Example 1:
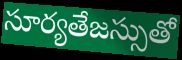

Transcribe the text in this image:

సూర్యతేజస్సుతో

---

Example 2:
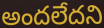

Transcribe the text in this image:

అందలేదని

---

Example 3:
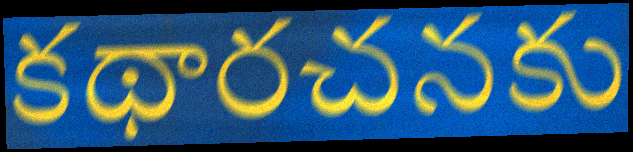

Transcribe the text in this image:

కథారచనకు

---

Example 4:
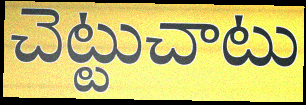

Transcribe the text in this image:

చెట్టుచాటు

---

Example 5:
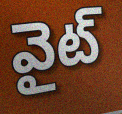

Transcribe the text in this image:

వైట్